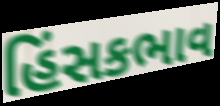
હિંસકભાવ